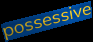
possessive